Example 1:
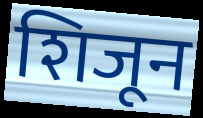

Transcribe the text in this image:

शिजून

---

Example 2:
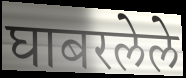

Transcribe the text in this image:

घाबरलेले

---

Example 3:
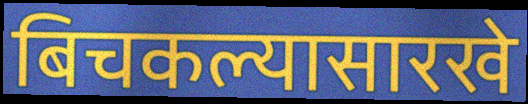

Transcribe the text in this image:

बिचकल्यासारखे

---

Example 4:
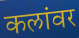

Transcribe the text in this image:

कलांवर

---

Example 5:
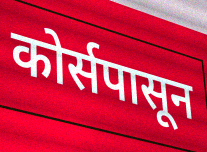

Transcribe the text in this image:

कोर्सपासून